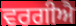
ਵਰਗੀਐ